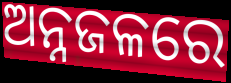
ଅନ୍ନଜଳରେ